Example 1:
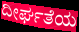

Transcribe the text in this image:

ದೀರ್ಘತೆಯ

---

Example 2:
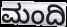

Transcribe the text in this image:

ಮಂದಿ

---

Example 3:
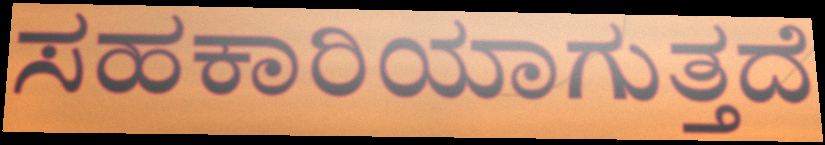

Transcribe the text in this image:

ಸಹಕಾರಿಯಾಗುತ್ತದೆ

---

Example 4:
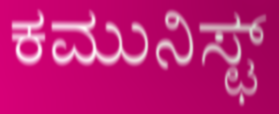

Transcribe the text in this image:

ಕಮುನಿಸ್ಟ್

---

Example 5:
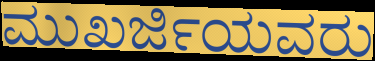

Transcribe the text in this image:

ಮುಖರ್ಜಿಯವರು